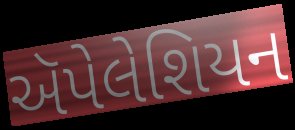
ઍપેલેશિયન